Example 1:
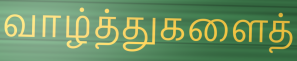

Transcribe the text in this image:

வாழ்த்துகளைத்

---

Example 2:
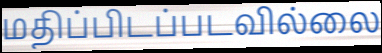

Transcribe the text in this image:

மதிப்பிடப்படவில்லை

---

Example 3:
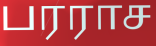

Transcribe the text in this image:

பரராச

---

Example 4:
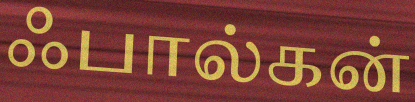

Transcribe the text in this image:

ஃபால்கன்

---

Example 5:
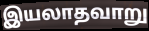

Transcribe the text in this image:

இயலாதவாறு